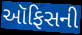
ઑફિસની